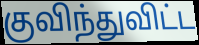
குவிந்துவிட்ட